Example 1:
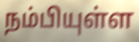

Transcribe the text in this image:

நம்பியுள்ள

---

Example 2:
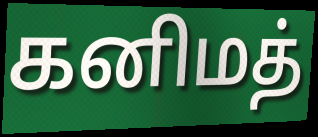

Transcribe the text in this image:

கனிமத்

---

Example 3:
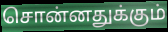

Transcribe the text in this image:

சொன்னதுக்கும்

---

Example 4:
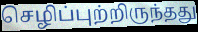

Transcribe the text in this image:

செழிப்புற்றிருந்தது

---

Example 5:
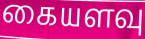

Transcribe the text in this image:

கையளவு